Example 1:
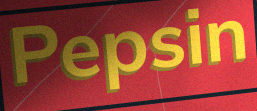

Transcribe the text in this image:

Pepsin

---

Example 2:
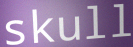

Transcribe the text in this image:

skull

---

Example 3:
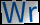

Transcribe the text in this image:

Wr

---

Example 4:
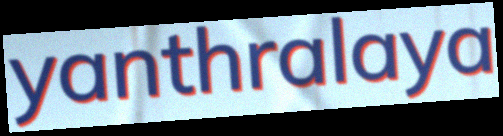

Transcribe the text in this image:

yanthralaya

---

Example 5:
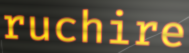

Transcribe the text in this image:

ruchire